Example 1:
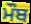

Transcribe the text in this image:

ਮੌਬ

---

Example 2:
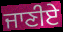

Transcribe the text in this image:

ਜਾਣੀਏ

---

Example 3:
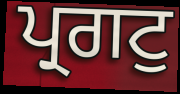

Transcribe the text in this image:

ਪ੍ਰਗਟੁ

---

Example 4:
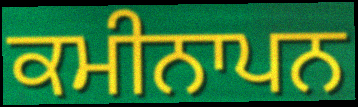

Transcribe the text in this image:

ਕਮੀਨਾਪਨ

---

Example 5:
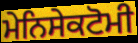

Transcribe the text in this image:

ਮੇਨਿਸੇਕਟੋਮੀ